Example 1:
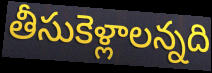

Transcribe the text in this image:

తీసుకెళ్లాలన్నది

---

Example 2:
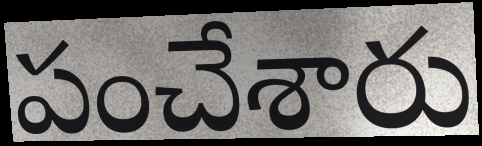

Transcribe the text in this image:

పంచేశారు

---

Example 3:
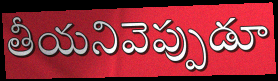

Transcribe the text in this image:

తీయనివెప్పుడూ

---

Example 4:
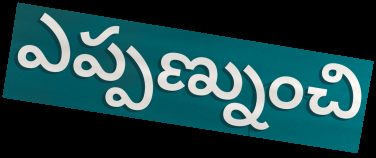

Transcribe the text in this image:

ఎప్పణ్నుంచి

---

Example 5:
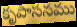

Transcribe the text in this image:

కృపాసనము